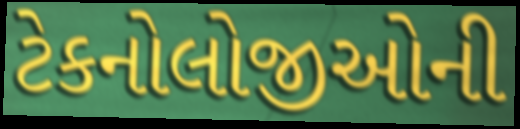
ટેકનોલોજીઓની